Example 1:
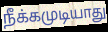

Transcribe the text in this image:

நீக்கமுடியாது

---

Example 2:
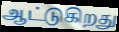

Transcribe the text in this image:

ஆட்டுகிறது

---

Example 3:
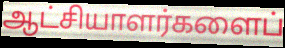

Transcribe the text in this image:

ஆட்சியாளர்களைப்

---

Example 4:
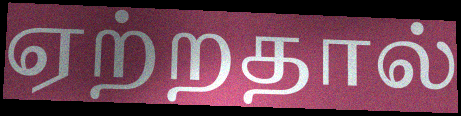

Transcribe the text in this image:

ஏற்றதால்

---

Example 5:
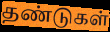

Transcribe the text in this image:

தண்டுகள்